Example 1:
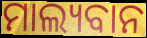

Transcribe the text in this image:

ମାଲ୍ୟବାନ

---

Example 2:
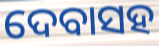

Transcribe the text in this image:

ଦେବାସହ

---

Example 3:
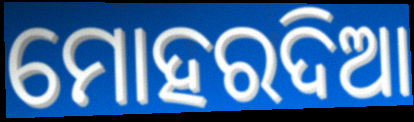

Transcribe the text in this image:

ମୋହରଦିଆ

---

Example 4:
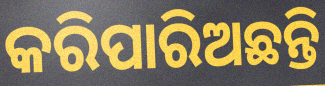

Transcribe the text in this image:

କରିପାରିଅଛନ୍ତି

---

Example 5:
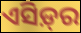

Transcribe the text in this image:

ଏସିଡ଼୍‌ର